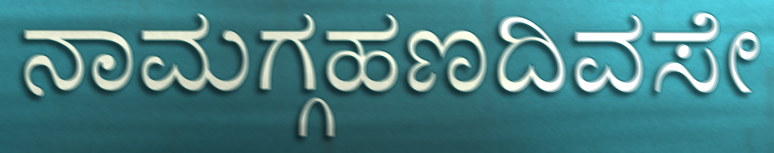
ನಾಮಗ್ಗಹಣದಿವಸೇ